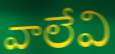
వాలేవి